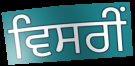
ਵਿਸਰੀਂ